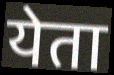
येता